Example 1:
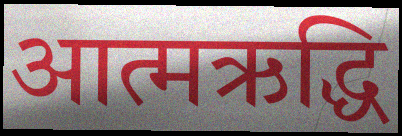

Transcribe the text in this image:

आत्मऋद्धि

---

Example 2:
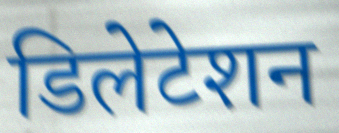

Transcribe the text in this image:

डिलेटेशन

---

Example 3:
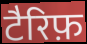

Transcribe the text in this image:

टैरिफ़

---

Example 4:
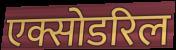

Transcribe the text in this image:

एक्सोडरिल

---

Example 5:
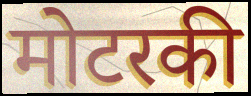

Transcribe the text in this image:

मोटरकी